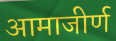
आमाजीर्ण